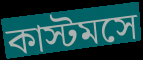
কাস্টমসে